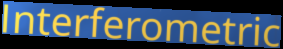
Interferometric